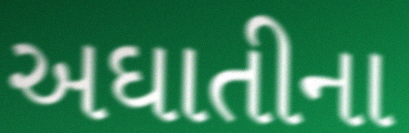
અઘાતીના